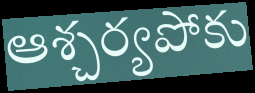
ఆశ్చర్యపోకు